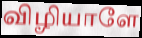
விழியாளே